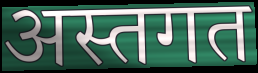
अस्तगत